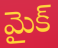
మైక్